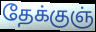
தேக்குஞ்